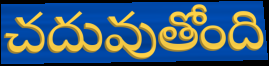
చదువుతోంది